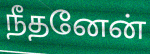
நீதனேன்